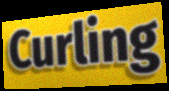
Curling